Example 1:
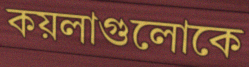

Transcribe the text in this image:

কয়লাগুলোকে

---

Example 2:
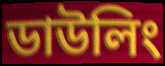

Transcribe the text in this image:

ডাউলিং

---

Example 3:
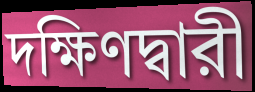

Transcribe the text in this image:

দক্ষিণদ্বারী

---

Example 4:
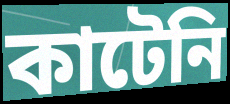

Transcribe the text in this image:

কাটেনি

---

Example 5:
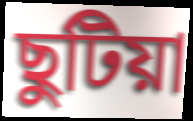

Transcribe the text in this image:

ছুটিয়া